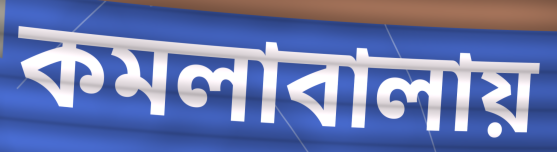
কমলাবালায়